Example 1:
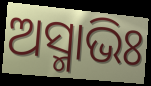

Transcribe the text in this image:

ଅସ୍ମାଭିଃ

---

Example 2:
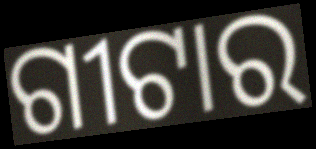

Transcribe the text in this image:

ଗୀଟାର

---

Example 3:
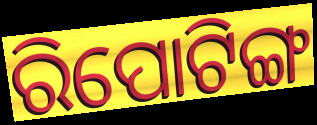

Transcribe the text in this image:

ରିପୋଟିଙ୍ଗ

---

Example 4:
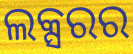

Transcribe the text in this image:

ଲକ୍ସରର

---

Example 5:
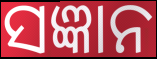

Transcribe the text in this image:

ସଜ୍ଞାନ